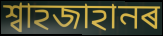
শ্বাহজাহানৰ